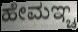
ಹೇಮಞ್ಚ